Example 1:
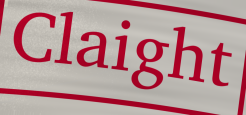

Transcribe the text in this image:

Claight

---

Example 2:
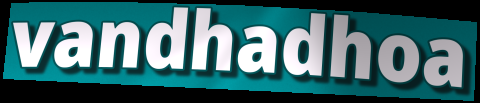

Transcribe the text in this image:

vandhadhoa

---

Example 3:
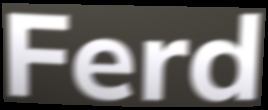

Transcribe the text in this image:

Ferd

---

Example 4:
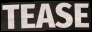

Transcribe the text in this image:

TEASE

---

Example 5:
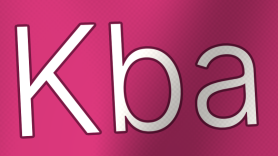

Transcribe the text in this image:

Kba